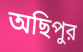
অছিপুর